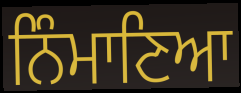
ਨਿੰਮਾਣਿਆ